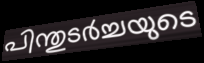
പിന്തുടർച്ചയുടെ